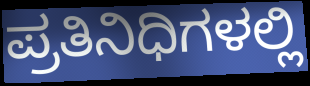
ಪ್ರತಿನಿಧಿಗಳಲ್ಲಿ